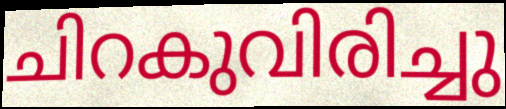
ചിറകുവിരിച്ചു